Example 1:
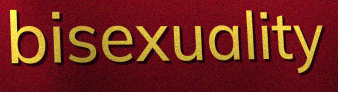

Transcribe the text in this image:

bisexuality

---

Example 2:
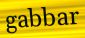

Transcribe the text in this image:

gabbar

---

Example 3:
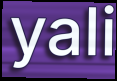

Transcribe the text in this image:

yali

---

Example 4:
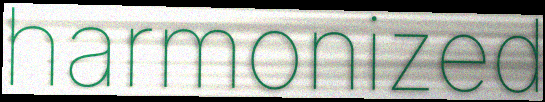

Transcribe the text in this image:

harmonized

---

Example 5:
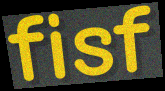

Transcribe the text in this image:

fisf